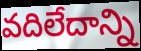
వదిలేదాన్ని